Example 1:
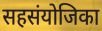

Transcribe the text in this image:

सहसंयोजिका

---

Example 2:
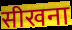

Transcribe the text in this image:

सीखना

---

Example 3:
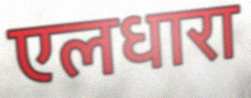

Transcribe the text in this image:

एलधारा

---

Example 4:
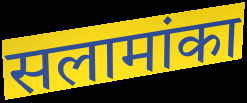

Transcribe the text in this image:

सलामांका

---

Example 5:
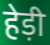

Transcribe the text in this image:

हेड़ी